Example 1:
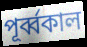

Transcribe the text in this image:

পূর্ব্বকাল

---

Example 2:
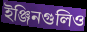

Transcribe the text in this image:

ইঞ্জিনগুলিও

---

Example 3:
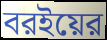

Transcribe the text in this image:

বরইয়ের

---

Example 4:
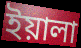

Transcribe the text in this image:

ইয়ালা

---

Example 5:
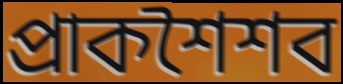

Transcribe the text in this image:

প্রাকশৈশব